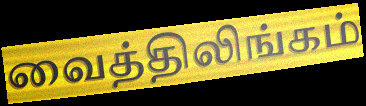
வைத்திலிங்கம்